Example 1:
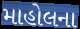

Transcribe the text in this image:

માહોલના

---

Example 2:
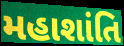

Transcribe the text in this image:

મહાશાંતિ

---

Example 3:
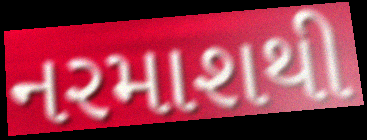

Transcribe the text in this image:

નરમાશથી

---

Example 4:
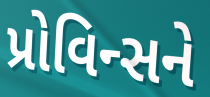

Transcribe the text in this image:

પ્રોવિન્સને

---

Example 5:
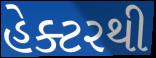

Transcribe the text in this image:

હેક્ટરથી